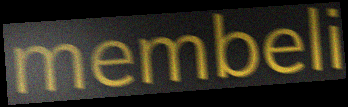
membeli